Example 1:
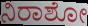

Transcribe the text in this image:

ನಿರಾಶೋ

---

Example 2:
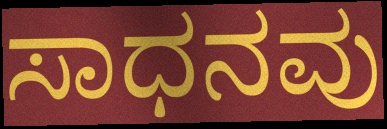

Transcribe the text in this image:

ಸಾಧನವು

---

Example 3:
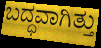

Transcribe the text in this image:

ಬದ್ಧವಾಗಿತ್ತು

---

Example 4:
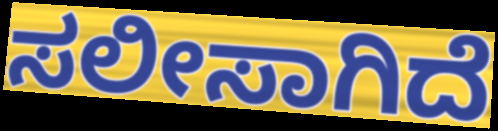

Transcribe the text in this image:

ಸಲೀಸಾಗಿದೆ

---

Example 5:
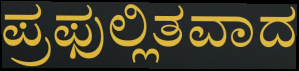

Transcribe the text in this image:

ಪ್ರಫುಲ್ಲಿತವಾದ